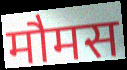
मौमस